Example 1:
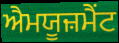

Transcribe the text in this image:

ਐਮਯੂਜ਼ਮੈਂਟ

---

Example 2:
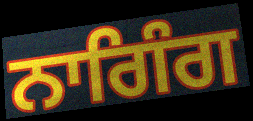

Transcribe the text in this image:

ਨਾਗਿੰਗ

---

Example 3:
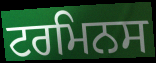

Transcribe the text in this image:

ਟਰਮਿਨਸ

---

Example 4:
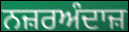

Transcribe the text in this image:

ਨਜ਼ਰਅੰਦਾਜ਼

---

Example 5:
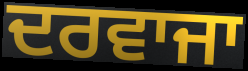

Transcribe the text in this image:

ਦਰਵਾਜਾ